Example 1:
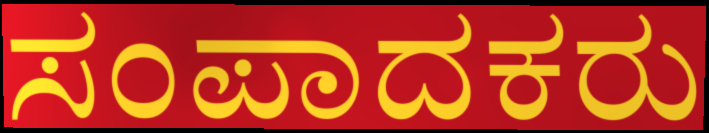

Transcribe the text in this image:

ಸಂಪಾದಕರು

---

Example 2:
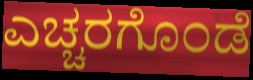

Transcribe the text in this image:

ಎಚ್ಚರಗೊಂಡೆ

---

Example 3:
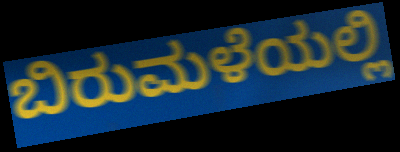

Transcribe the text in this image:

ಬಿರುಮಳೆಯಲ್ಲಿ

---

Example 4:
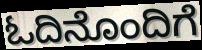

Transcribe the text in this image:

ಓದಿನೊಂದಿಗೆ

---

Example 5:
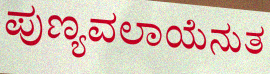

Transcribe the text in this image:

ಪುಣ್ಯವಲಾಯೆನುತ